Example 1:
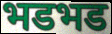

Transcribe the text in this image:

भडभड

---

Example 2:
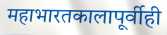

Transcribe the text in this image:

महाभारतकालापूर्वीही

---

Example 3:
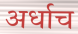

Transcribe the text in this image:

अर्धाच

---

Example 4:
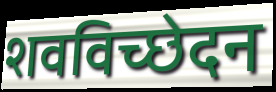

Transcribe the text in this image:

शवविच्छेदन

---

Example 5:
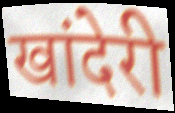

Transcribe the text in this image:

खांदेरी